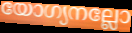
യോഗ്യനല്ലോ